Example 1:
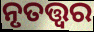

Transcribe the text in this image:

ନୃତତ୍ତ୍ୱର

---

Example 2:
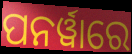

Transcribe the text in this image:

ପନର୍ୱାରେ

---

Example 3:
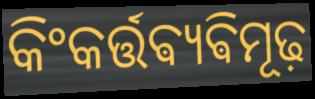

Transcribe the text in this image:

କିଂକର୍ତ୍ତଵ୍ଯଵିମୂଢ଼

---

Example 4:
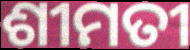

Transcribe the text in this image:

ଶୀମତୀ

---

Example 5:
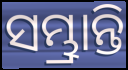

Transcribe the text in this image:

ସମ୍ଭ୍ରାନ୍ତି